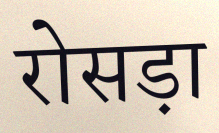
रोसड़ा